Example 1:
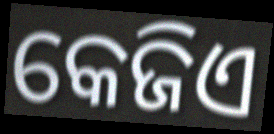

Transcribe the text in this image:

କେଜିଏ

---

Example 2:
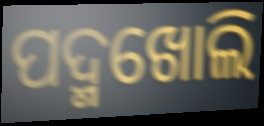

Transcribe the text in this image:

ପଦ୍ମଖୋଲି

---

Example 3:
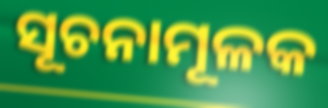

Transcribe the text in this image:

ସୂଚନାମୂଳକ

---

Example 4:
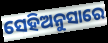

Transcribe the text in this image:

ସେହିଅନୁସାରେ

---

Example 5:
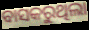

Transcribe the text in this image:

ବାସକରୁଥିଲା